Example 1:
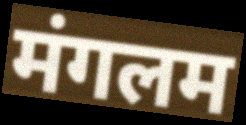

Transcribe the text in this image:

मंगलम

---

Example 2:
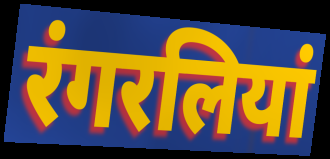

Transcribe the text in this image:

रंगरलियां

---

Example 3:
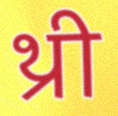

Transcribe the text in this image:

थ्री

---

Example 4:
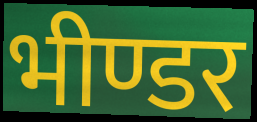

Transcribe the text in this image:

भीण्डर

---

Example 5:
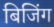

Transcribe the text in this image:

बिजिंग